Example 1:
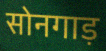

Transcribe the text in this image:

सोनगाड़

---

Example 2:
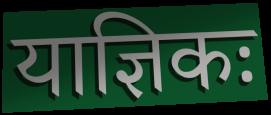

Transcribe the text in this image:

याज्ञिकः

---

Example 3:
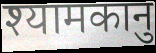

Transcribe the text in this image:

श्यामकानु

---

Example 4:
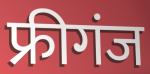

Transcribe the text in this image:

फ्रीगंज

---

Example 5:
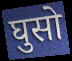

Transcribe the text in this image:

घुसो